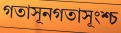
গতাসূনগতাসূংশ্চ